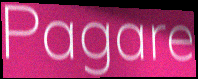
Pagare